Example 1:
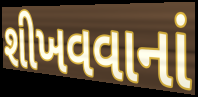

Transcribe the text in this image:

શીખવવાનાં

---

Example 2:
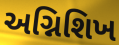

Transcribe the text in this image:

અગ્નિશિખ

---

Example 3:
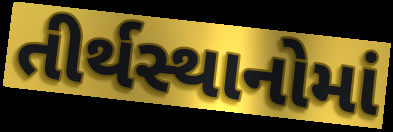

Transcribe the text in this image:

તીર્થસ્થાનોમાં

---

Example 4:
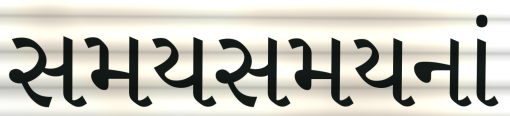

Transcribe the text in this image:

સમયસમયનાં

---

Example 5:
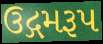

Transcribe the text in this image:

ઉદ્ગમરૂપ